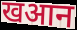
खआन